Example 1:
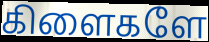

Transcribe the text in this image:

கிளைகளே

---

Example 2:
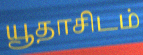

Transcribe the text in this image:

யூதாசிடம்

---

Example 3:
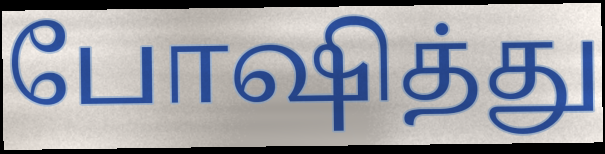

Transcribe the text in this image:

போஷித்து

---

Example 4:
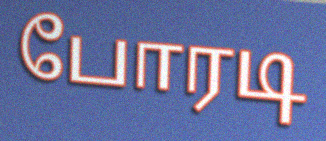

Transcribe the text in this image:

போரடி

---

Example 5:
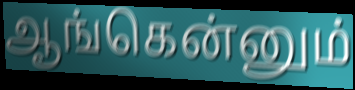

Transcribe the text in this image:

ஆங்கென்னும்